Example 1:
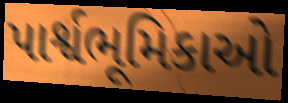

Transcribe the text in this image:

પાર્શ્વભૂમિકાઓ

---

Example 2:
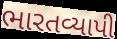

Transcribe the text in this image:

ભારતવ્યાપી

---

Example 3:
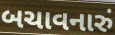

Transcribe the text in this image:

બચાવનારું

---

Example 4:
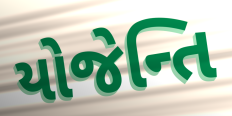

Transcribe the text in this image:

યોજેન્તિ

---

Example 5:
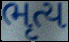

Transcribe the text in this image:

ભૃત્ય